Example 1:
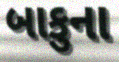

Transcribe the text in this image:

બાકુના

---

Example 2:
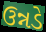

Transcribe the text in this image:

ઉન્નડે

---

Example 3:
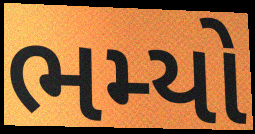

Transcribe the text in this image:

ભમ્યો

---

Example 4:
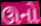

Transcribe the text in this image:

ઊનો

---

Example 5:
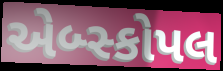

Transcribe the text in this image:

એબ્સ્કોપલ